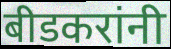
बीडकरांनी